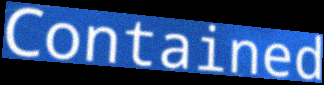
Contained